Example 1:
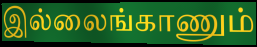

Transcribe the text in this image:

இல்லைங்காணும்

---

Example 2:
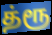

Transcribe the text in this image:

த்ரூ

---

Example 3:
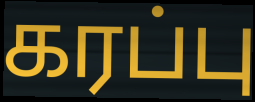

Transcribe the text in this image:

கரப்பு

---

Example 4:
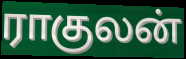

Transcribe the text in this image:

ராகுலன்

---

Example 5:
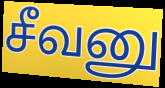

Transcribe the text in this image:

சீவனு